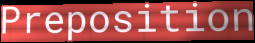
Preposition